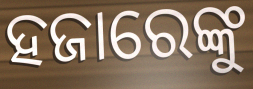
ହଜାରେଙ୍କୁ